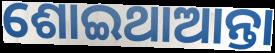
ଶୋଇଥାଆନ୍ତା